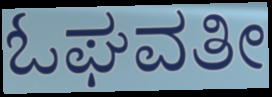
ಓಘವತೀ